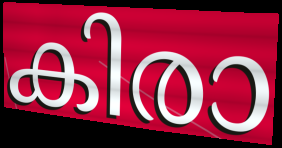
കിരാ